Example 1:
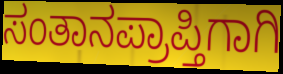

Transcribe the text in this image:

ಸಂತಾನಪ್ರಾಪ್ತಿಗಾಗಿ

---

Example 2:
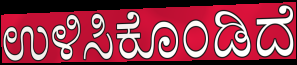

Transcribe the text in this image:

ಉಳಿಸಿಕೊಂಡಿದೆ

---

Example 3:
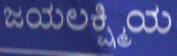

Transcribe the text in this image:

ಜಯಲಕ್ಷ್ಮಿಯ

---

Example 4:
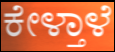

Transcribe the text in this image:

ಕೇಳ್ತಾಳೆ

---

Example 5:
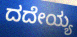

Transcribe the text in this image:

ದದೇಯ್ಯ